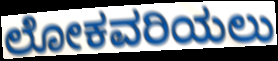
ಲೋಕವರಿಯಲು